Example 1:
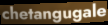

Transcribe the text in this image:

chetangugale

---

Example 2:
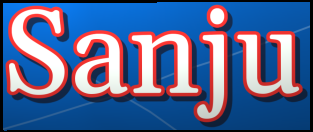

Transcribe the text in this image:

Sanju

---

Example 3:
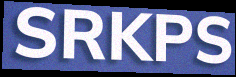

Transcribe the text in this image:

SRKPS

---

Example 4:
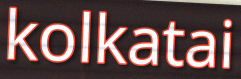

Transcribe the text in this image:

kolkatai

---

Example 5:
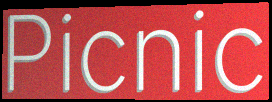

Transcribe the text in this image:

Picnic